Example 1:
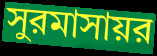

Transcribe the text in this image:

সুরমাসায়র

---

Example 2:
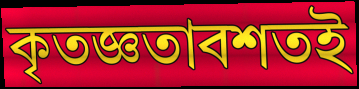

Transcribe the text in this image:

কৃতজ্ঞতাবশতই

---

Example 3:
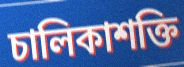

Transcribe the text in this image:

চালিকাশক্তি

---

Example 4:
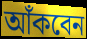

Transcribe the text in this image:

আঁকবেন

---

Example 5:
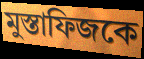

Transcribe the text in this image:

মুস্তাফিজকে